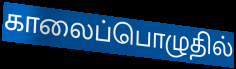
காலைப்பொழுதில்